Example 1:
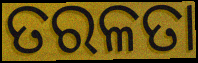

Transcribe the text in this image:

ତରଳତା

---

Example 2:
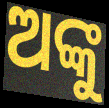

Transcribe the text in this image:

ଅଙ୍କୁ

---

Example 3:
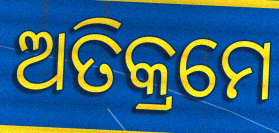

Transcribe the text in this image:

ଅତିକ୍ରମେ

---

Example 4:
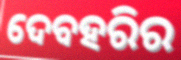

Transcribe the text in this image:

ଦେବହରିର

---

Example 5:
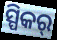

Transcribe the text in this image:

ସ୍ପିକର୍